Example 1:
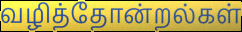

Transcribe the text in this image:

வழித்தோன்றல்கள்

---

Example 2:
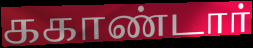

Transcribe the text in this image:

ககாண்டார்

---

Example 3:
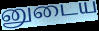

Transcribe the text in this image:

னுடைய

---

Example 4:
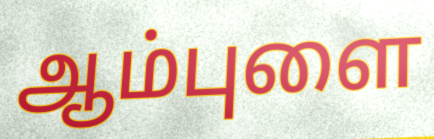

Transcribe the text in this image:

ஆம்புளை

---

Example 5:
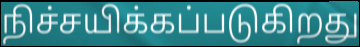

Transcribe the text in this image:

நிச்சயிக்கப்படுகிறது